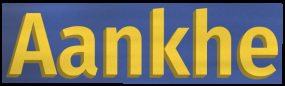
Aankhe